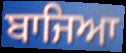
ਬਾਜਿਆ